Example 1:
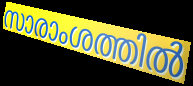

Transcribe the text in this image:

സാരാംശത്തിൽ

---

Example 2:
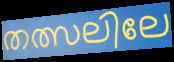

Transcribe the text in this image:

തത്സലിലേ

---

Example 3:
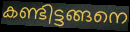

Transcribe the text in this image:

കണ്ടിട്ടങ്ങനെ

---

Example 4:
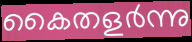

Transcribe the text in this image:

കൈതളർന്നു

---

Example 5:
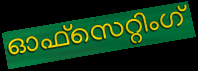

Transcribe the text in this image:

ഓഫ്സെറ്റിംഗ്